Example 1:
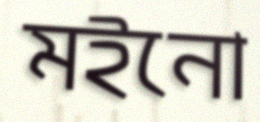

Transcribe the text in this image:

মইনো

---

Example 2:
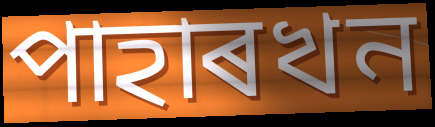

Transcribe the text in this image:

পাহাৰখন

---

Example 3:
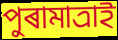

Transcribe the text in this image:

পুৰামাত্ৰাই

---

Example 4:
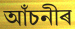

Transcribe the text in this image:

আঁচনীৰ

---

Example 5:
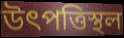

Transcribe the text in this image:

উৎপত্তিস্থল